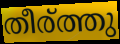
തീര്ത്തു